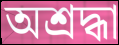
অশ্রদ্ধা